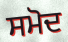
ਸਮੋਦ